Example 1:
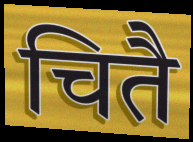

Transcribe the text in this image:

चितै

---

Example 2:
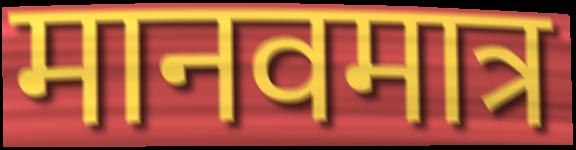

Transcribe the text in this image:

मानवमात्र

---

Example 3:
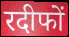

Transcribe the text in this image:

रदीफों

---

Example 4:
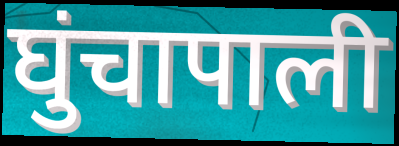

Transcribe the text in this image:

घुंचापाली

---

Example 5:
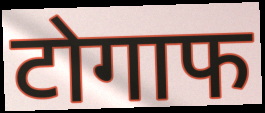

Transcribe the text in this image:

टोगाफ